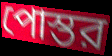
পোস্তর